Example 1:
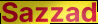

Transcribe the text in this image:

Sazzad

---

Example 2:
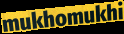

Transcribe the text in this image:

mukhomukhi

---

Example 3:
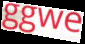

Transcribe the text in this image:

ggwe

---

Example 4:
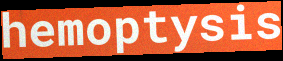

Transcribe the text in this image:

hemoptysis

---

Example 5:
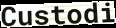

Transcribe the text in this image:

Custodi